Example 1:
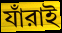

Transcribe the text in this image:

যাঁরাই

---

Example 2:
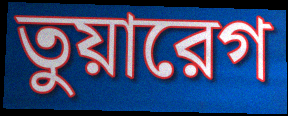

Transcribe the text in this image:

তুয়ারেগ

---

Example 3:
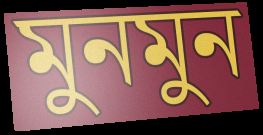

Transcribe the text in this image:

মুনমুন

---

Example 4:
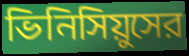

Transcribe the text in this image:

ভিনিসিয়ুসের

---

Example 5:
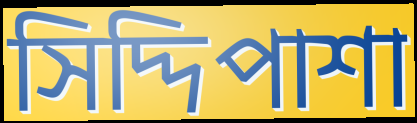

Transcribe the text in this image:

সিদ্দিপাশা